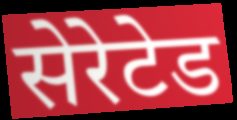
सेरेटेड